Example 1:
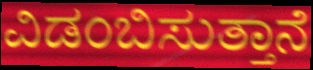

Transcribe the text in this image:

ವಿಡಂಬಿಸುತ್ತಾನೆ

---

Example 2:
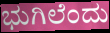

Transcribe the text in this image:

ಭುಗಿಲೆಂದು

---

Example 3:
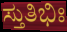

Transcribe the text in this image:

ಸ್ತುತಿಭಿಃ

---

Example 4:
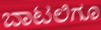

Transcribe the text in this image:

ಬಾಟಲಿಗೂ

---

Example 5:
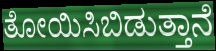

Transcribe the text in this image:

ತೋಯಿಸಿಬಿಡುತ್ತಾನೆ